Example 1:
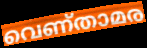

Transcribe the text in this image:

വെണ്താമര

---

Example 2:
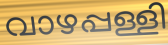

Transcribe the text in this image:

വാഴപ്പള്ളി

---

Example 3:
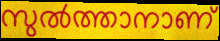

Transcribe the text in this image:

സുൽത്താനാണ്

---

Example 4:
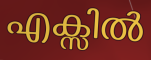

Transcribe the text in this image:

എക്സിൽ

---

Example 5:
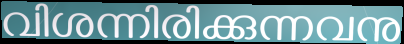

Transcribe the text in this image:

വിശന്നിരിക്കുന്നവനു